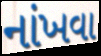
નાંખવા